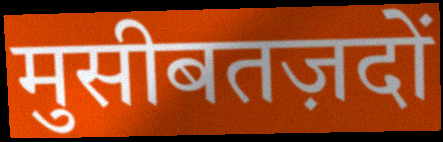
मुसीबतज़दों